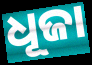
ଧୂଜା